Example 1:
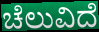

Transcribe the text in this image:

ಚೆಲುವಿದೆ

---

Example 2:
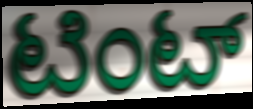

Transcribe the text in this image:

ಟೆಂಟ್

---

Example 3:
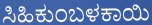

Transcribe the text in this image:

ಸಿಹಿಕುಂಬಳಕಾಯಿ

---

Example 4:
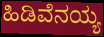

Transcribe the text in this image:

ಹಿಡಿವೆನಯ್ಯ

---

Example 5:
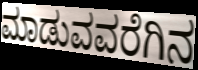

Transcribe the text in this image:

ಮಾಡುವವರೆಗಿನ